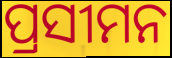
ପ୍ରସୀମନ